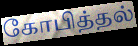
கோபித்தல்